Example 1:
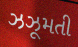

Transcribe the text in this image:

ઝઝૂમતી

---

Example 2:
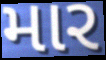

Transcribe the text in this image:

માર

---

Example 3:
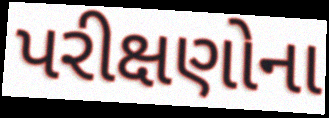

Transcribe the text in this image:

પરીક્ષણોના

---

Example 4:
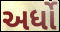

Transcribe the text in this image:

અર્ધો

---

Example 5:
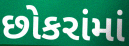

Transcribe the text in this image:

છોકરાંમાં